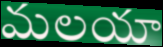
మలయా